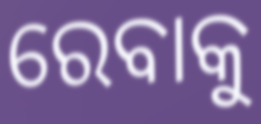
ରେବାକୁ